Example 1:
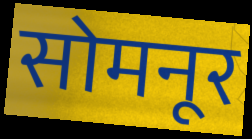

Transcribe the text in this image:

सोमनूर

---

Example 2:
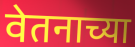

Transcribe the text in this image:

वेतनाच्या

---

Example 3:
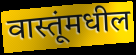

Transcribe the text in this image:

वास्तूंमधील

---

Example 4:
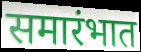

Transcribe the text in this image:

समारंभात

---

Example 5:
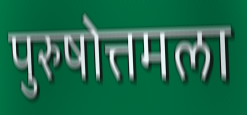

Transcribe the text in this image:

पुरुषोत्तमला